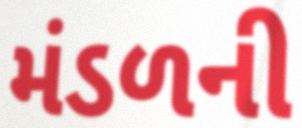
મંડળની